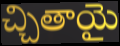
చ్చితాయై